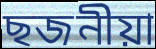
ছজনীয়া